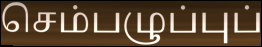
செம்பழுப்புப்